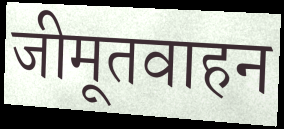
जीमूतवाहन